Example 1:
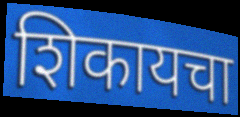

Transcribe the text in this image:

शिकायचा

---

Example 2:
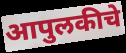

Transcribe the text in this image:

आपुलकीचे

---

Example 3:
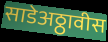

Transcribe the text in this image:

साडेअठ्ठावीस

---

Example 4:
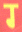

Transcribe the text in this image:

ग्‍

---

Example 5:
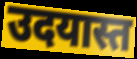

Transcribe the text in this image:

उदयास्त